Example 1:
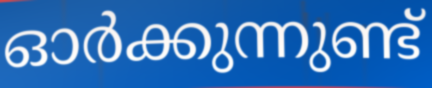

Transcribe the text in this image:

ഓർക്കുന്നുണ്ട്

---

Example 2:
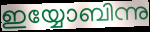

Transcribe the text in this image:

ഇയ്യോബിന്നു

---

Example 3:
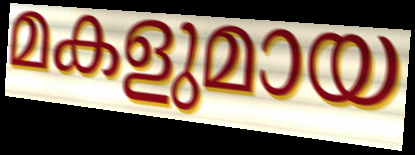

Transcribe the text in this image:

മകളുമായ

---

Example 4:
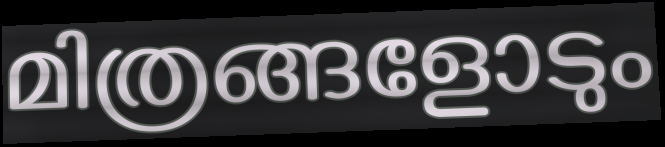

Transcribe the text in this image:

മിത്രങ്ങളോടും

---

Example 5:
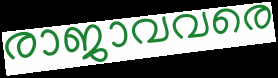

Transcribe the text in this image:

രാജാവവരെ